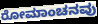
ರೋಮಾಂಚನವು